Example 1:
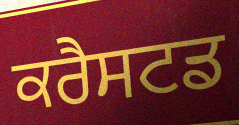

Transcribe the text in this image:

ਕਰੈਸਟਡ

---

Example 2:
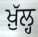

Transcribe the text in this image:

ਖ਼ੁੱਲ੍ਹ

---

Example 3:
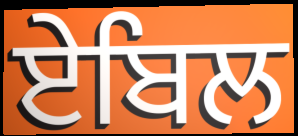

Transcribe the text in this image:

ਏਬਿਲ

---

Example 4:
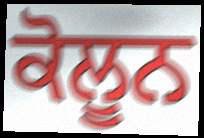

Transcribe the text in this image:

ਕੋਲੂਨ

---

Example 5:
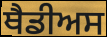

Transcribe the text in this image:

ਥੈਡੀਅਸ